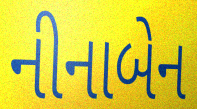
નીનાબેન